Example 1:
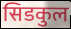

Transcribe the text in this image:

सिडकुल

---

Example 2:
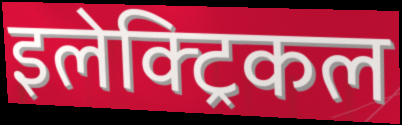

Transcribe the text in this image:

इलेक्ट्रिकल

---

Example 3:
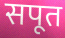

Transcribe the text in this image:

सपूत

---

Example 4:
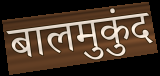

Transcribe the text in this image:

बालमुकुंद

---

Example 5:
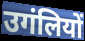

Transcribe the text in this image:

उगंलियों